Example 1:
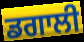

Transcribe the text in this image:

ਡਗਾਲੀ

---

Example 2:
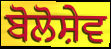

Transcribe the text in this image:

ਬੋਲੋਸ਼ੇਵ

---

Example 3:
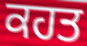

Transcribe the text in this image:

ਕਹਤ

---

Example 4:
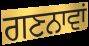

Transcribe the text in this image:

ਗਣਨਾਵਾਂ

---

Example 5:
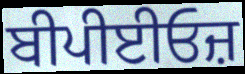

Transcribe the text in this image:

ਬੀਪੀਈਓਜ਼